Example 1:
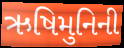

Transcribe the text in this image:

ઋષિમુનિની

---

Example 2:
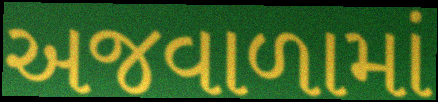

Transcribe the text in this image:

અજવાળામાં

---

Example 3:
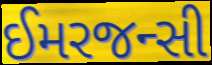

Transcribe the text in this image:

ઈમરજન્સી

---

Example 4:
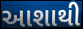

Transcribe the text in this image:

આશાથી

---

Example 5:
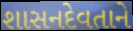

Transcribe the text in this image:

શાસનદેવતાને